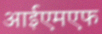
आईएमएफ